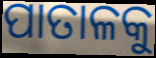
ପାତାଳକୁ